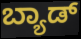
ಬ್ಯಾಡ್